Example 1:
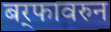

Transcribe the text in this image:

बर्फावरुन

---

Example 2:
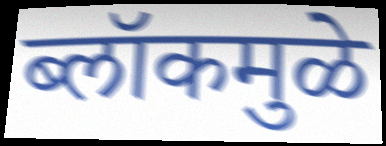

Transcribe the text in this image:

ब्लॉकमुळे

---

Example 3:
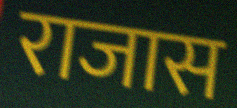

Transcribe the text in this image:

राजास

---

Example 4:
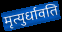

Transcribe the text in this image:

मृत्युर्धावति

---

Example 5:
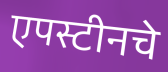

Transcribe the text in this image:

एपस्टीनचे